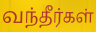
வந்தீர்கள்